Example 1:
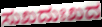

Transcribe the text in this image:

ಸುಖದುಃಖದ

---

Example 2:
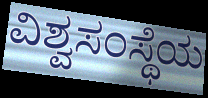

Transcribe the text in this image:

ವಿಶ್ವಸಂಸ್ಥೆಯ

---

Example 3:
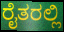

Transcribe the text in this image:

ರೈತರಲ್ಲಿ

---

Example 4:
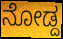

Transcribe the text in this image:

ನೋಡ್ದ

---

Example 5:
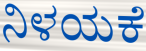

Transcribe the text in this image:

ನಿಳಯಕೆ